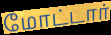
மோட்டார்